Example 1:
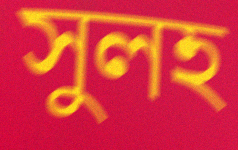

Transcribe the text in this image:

সুলহ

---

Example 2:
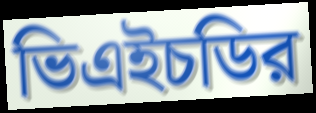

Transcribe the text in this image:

ভিএইচডির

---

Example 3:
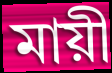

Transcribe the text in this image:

মায়ী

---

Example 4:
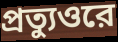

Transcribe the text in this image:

প্রত্যুওরে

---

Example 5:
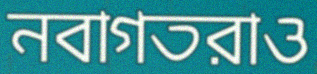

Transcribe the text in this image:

নবাগতরাও